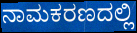
ನಾಮಕರಣದಲ್ಲಿ